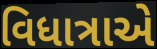
વિધાત્રાએ